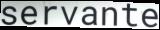
servante